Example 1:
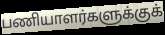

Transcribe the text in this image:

பணியாளர்களுக்குக்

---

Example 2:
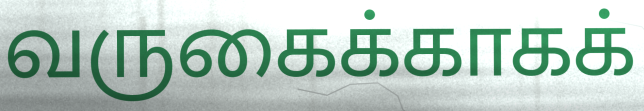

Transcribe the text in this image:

வருகைக்காகக்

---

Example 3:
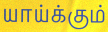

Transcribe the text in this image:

யாய்க்கும்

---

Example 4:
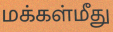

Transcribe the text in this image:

மக்கள்மீது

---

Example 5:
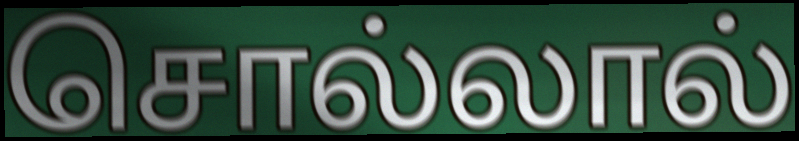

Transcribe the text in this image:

சொல்லால்